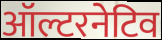
ऑल्टरनेटिव